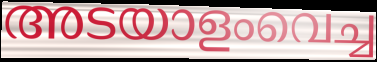
അടയാളംവെച്ച